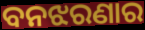
ବନଝରଣାର